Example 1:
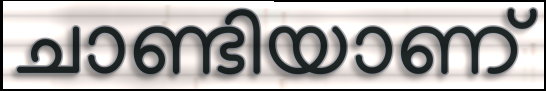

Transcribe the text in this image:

ചാണ്ടിയാണ്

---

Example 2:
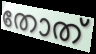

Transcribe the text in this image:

തോത്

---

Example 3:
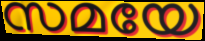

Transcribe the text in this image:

സമയേ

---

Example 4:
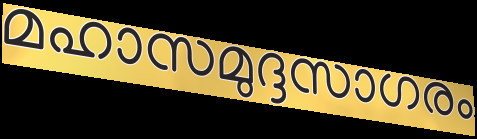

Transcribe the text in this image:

മഹാസമുദ്ദസാഗരം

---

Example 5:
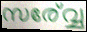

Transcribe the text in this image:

സര്വ്വേ